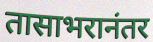
तासाभरानंतर